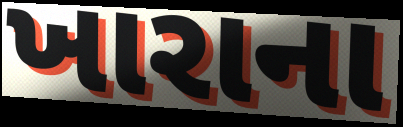
ખારાના